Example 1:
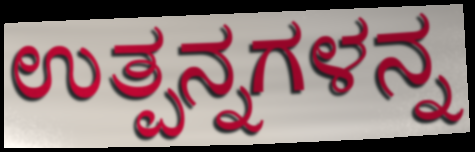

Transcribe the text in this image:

ಉತ್ಪನ್ನಗಳನ್ನ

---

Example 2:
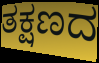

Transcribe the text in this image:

ತಕ್ಷಣದ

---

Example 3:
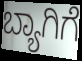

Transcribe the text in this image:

ಬ್ಯಾಗಿಗೆ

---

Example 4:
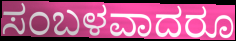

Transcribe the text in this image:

ಸಂಬಳವಾದರೂ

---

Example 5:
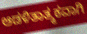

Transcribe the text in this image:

ಆಡಳಿತಾತ್ಮಕವಾಗಿ